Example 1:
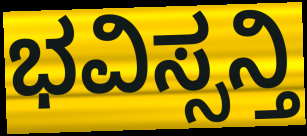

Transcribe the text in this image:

ಭವಿಸ್ಸನ್ತಿ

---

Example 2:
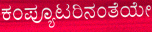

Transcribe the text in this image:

ಕಂಪ್ಯೂಟರಿನಂತೆಯೇ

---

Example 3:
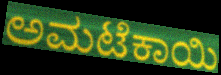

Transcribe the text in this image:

ಅಮಟೆಕಾಯಿ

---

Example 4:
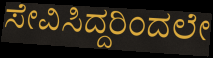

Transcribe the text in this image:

ಸೇವಿಸಿದ್ದರಿಂದಲೇ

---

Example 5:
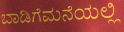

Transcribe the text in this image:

ಬಾಡಿಗೆಮನೆಯಲ್ಲಿ